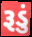
રૂડું